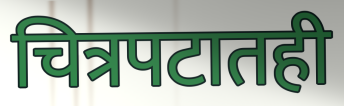
चित्रपटातही